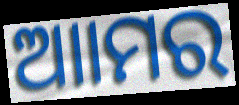
ଆାମର